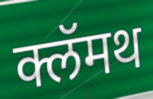
क्लॅमथ